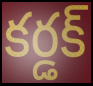
కర్డక్